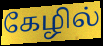
கேழில்